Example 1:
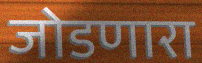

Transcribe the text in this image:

जोडणारा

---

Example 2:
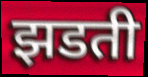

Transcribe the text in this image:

झडती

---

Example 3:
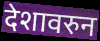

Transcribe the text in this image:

देशावरुन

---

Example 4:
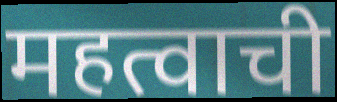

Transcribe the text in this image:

महत्वाची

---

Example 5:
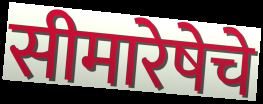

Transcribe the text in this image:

सीमारेषेचे